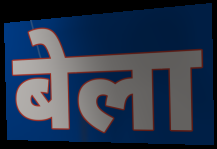
बेला